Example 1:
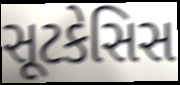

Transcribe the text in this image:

સૂટકેસિસ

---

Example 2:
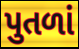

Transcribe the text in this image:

પુતળાં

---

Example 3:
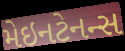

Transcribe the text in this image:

મેઇનટેનન્સ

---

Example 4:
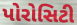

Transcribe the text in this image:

પોરોસિટી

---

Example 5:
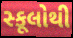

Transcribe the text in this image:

સ્કૂલોથી